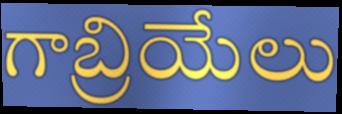
గాబ్రియేలు